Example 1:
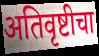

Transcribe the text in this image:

अतिवृष्टीचा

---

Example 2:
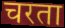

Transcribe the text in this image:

चरता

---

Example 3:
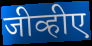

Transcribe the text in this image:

जीव्हीए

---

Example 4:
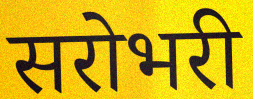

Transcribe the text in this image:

सरोभरी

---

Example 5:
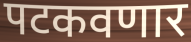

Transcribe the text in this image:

पटकवणार